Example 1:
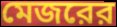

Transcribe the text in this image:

মেজরের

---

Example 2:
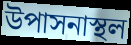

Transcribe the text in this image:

উপাসনাস্থল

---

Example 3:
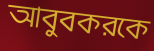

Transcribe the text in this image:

আবুবকরকে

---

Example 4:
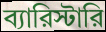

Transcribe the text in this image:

ব্যারিস্টারি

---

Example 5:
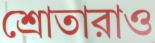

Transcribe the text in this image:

শ্রোতারাও